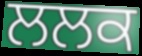
ਲਲਕ